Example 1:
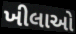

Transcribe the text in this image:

ખીલાઓ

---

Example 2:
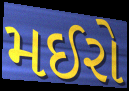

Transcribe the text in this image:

મઈરો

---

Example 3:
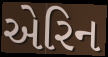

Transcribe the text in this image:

એરિન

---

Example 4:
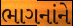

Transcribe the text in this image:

ભાગનાંને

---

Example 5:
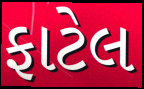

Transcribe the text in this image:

ફાટેલ